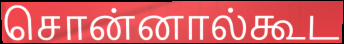
சொன்னால்கூட